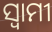
ସ୍ବାମୀ